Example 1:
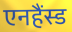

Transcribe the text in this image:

एनहैंस्ड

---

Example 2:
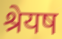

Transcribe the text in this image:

श्रेयष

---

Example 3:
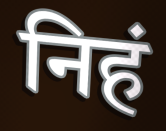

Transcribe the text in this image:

निहं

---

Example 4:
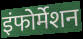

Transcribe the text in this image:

इंफोर्मेशन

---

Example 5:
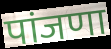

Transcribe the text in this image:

पांजणा